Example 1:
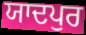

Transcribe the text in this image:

ਯਾਦਪੁਰ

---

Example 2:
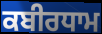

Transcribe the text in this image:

ਕਬੀਰਧਾਮ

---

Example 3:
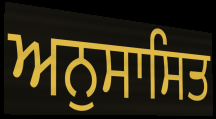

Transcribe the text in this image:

ਅਨੁਸਾਸਿਤ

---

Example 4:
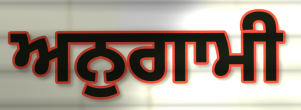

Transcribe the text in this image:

ਅਨੁਗਾਮੀ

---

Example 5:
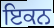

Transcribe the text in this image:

ਇਕਨ